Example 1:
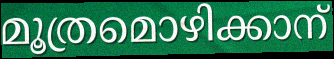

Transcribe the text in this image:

മൂത്രമൊഴിക്കാന്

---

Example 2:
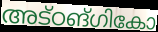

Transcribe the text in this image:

അട്ഠങ്ഗികോ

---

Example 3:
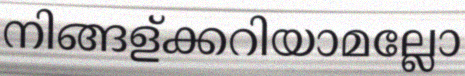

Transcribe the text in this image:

നിങ്ങള്ക്കറിയാമല്ലോ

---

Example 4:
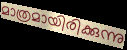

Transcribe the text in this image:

മാത്രമായിരിക്കുന്നു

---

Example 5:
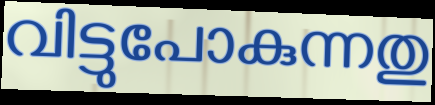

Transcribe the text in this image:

വിട്ടുപോകുന്നതു